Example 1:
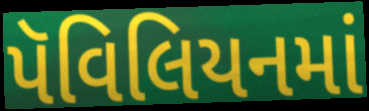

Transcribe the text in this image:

પૅવિલિયનમાં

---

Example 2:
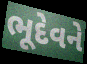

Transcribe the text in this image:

ભૂદેવને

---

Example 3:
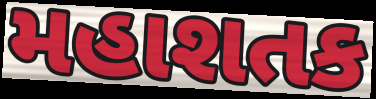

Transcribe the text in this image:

મહાશતક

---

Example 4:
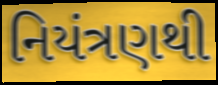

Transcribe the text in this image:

નિયંત્રણથી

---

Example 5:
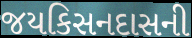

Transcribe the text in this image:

જયકિસનદાસની